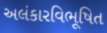
અલંકારવિભૂષિત